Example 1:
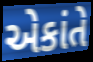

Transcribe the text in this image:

એકાંતે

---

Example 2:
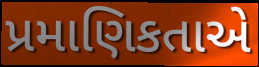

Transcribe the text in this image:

પ્રમાણિકતાએ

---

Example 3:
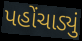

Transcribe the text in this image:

પહોંચાડ્યું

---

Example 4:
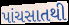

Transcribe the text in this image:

પાંચસાતથી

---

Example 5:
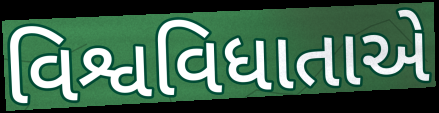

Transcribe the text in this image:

વિશ્વવિધાતાએ